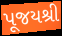
પૂજયશ્રી